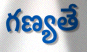
గణ్యతే